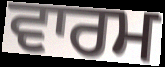
ਵਾਰਮ